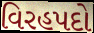
વિરહપદો